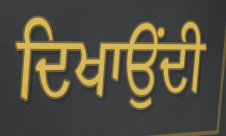
ਦਿਖਾਉਂਦੀ